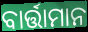
ବାର୍ତ୍ତାମାନ